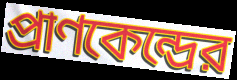
প্রাণকেন্দ্রের